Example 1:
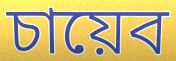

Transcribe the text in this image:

চায়েব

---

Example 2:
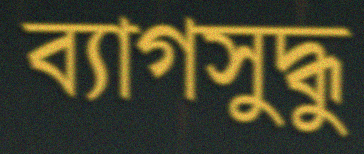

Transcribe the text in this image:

ব্যাগসুদ্ধু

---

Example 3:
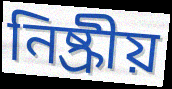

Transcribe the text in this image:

নিষ্ক্রীয়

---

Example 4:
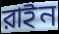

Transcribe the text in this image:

রাইন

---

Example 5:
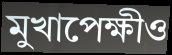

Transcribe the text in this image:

মুখাপেক্ষীও